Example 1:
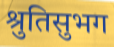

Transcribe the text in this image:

श्रुतिसुभग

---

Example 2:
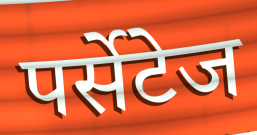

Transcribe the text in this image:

पर्सेटेज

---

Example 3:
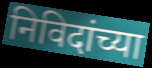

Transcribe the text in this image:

निविदांच्या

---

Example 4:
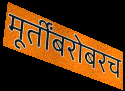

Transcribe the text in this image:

मूर्तींबरोबरच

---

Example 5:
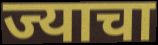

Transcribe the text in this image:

ज्याचा